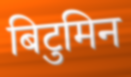
बिटुमिन